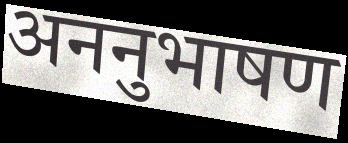
अननुभाषण